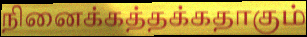
நினைக்கத்தக்கதாகும்